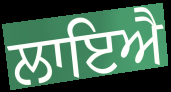
ਲਾਇਐ